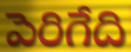
పెరిగేది